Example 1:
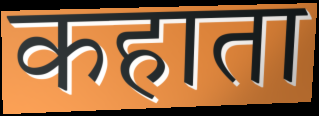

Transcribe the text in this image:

कहाता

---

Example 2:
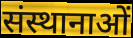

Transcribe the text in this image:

संस्थानाओं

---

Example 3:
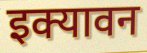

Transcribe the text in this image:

इक्यावन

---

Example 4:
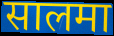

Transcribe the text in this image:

सालमा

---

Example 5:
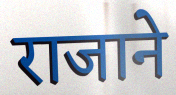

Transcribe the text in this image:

राजाने